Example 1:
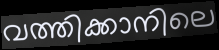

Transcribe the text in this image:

വത്തിക്കാനിലെ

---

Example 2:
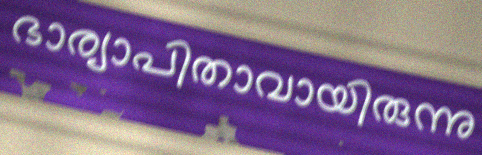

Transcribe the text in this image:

ഭാര്യാപിതാവായിരുന്നു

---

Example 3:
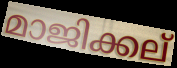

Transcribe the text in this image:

മാജിക്കല്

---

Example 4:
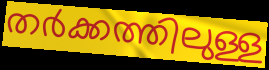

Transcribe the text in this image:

തർക്കത്തിലുള്ള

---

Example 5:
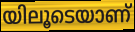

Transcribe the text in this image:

യിലൂടെയാണ്